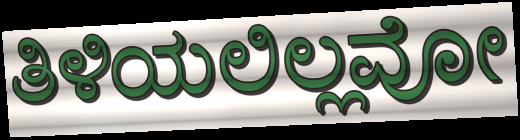
ತಿಳಿಯಲಿಲ್ಲವೋ